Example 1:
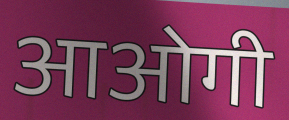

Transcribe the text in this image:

आओगी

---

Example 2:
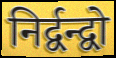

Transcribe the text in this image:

निर्द्वन्द्वो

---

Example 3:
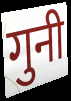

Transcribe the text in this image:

गुनी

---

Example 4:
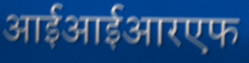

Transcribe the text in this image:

आईआईआरएफ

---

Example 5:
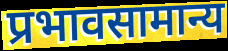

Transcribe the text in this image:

प्रभावसामान्य